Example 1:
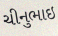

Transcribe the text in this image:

ચીનુભાઇ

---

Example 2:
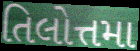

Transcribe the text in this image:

તિલોત્તમા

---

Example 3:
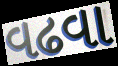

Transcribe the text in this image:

વઢવા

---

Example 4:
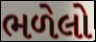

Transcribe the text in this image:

ભળેલો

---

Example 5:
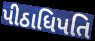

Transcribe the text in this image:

પીઠાધિપતિ